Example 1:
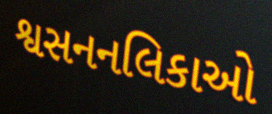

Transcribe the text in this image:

શ્વસનનલિકાઓ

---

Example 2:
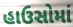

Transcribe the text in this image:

હાઉસોમાં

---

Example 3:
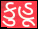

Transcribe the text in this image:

કુહૂ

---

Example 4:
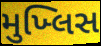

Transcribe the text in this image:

મુખ્લિસ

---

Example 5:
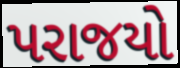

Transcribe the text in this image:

પરાજયો